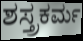
ಶಸ್ತ್ರಕರ್ಮ